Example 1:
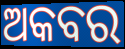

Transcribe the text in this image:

ଅକବର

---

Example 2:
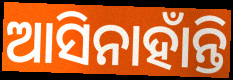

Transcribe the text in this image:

ଆସିନାହାଁନ୍ତି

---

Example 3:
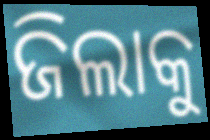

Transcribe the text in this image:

ଜିଲାକୁ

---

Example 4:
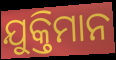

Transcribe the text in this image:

ଯୁକ୍ତିମାନ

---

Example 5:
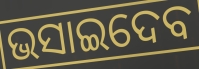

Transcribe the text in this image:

ଭସାଇଦେବ